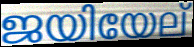
ജയിയേല്